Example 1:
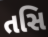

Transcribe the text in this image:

તસિ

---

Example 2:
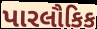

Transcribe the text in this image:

પારલૌકિક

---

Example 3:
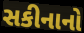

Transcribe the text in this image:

સકીનાનો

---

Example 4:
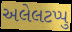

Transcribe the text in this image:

અલેલટપ્પુ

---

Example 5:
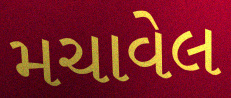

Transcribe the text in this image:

મચાવેલ